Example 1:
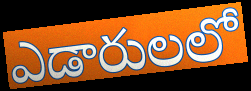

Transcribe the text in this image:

ఎడారులలో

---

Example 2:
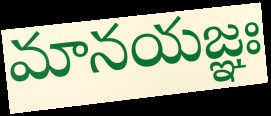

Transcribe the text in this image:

మానయజ్ఞః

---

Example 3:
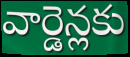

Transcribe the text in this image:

వార్డెన్లకు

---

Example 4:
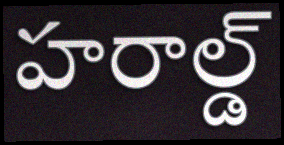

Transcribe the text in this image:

హరాల్డ్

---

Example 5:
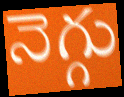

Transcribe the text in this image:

నెగ్గు